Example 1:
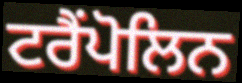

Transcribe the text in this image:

ਟਰੈਂਪੋਲਿਨ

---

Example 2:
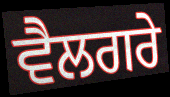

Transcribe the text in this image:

ਵੈਲਗਰੇ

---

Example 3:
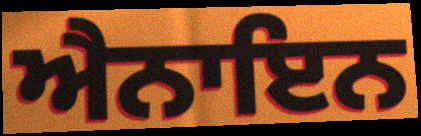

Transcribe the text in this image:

ਐਨਾਇਨ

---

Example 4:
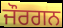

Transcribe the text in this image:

ਜੌਰਗਨ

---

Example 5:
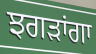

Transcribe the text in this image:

ਝਗੜਾਂਗਾ